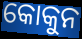
କୋକୁନ